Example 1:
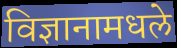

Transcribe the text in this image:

विज्ञानामधले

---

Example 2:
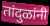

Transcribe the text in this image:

तांदुळांनी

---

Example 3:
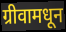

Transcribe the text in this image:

ग्रीवामधून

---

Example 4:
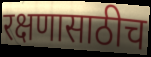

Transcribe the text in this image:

रक्षणासाठीच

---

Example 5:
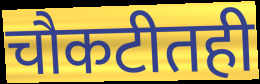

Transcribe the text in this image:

चौकटीतही